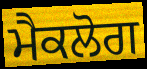
ਮੈਕਲੋਗ